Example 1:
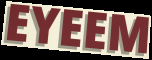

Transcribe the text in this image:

EYEEM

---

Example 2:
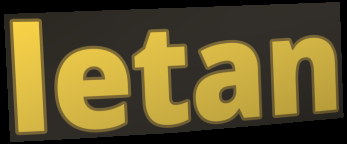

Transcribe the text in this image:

letan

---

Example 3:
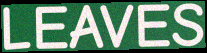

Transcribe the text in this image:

LEAVES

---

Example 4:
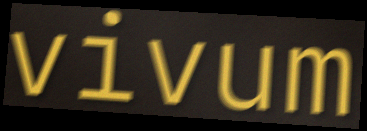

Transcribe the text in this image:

vivum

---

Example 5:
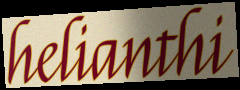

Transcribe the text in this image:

helianthi